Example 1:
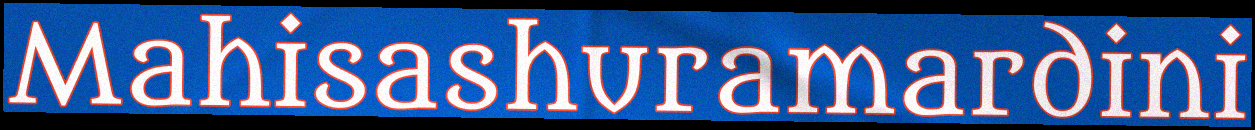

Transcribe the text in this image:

Mahisashuramardini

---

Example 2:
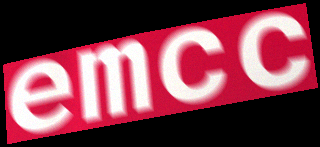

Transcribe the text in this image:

emcc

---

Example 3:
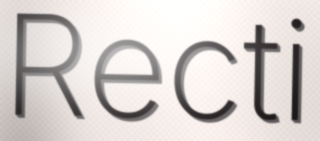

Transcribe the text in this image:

Recti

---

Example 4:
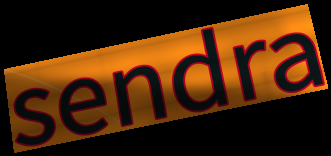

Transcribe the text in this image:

sendra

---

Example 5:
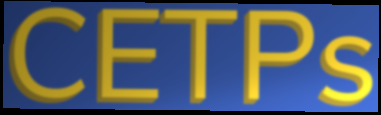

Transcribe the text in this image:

CETPs